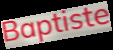
Baptiste